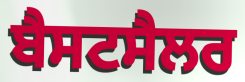
ਬੈਸਟਸੈਲਰ